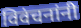
विवंचनांनी